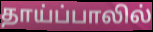
தாய்ப்பாலில்